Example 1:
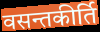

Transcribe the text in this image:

वसन्तकीर्ति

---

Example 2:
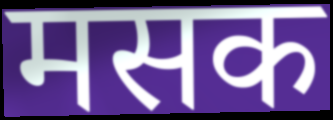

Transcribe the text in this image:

मसक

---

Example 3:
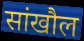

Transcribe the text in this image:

सांखौल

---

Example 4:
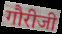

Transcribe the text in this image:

गौरीजी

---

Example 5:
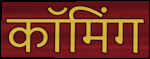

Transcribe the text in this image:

कॉमिंग